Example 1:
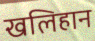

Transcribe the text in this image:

खलिहान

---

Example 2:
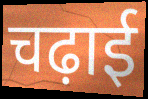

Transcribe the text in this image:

चढ़ाई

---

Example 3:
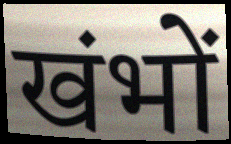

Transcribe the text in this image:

खंभों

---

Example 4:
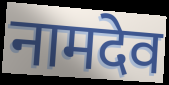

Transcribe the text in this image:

नामदेव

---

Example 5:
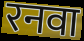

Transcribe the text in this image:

रनवा